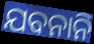
ଯବନାନି